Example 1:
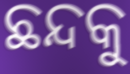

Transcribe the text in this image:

ଛନ୍ଦକୁ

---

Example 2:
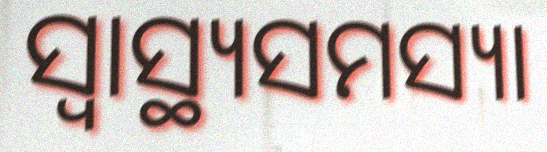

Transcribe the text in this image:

ସ୍ୱାସ୍ଥ୍ୟସମସ୍ୟା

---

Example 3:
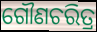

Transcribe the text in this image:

ଗୌଣଚରିତ୍ର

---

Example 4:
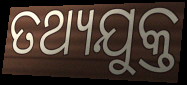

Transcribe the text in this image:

ତଥ୍ୟଯୁକ୍ତ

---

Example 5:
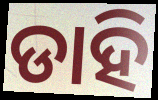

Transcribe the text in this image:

ଡାହି